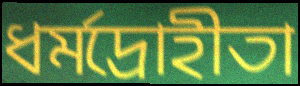
ধর্মদ্রোহীতা